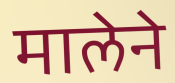
मालेने